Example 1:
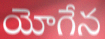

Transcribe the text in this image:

యోగేన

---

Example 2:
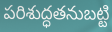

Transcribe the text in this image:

పరిశుద్ధతనుబట్టి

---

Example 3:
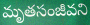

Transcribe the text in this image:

మృతసంజీవని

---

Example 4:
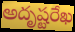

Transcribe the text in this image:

అదృష్టరేఖ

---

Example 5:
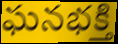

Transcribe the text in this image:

ఘనభక్తి